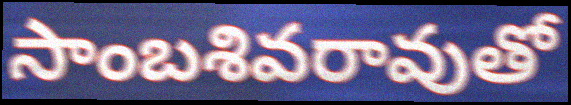
సాంబశివరావుతో